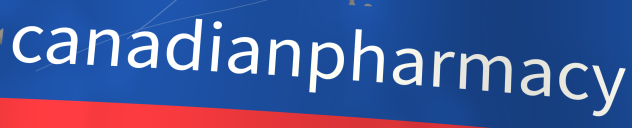
canadianpharmacy